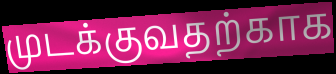
முடக்குவதற்காக